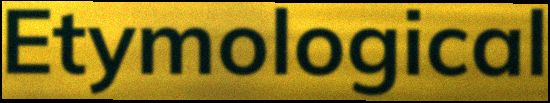
Etymological